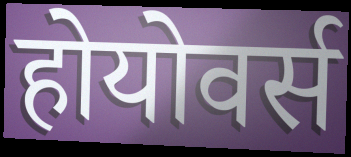
होयोवर्स